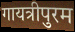
गायत्रीपुरम